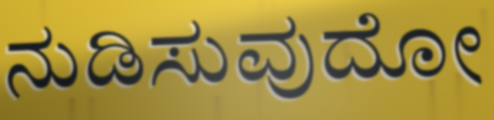
ನುಡಿಸುವುದೋ